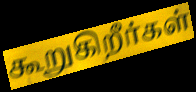
கூறுகிறீர்கள்